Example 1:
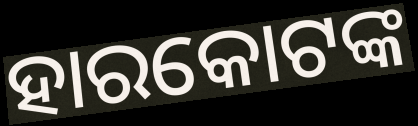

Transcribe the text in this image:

ହାରକୋଟଙ୍କ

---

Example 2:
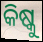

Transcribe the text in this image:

କିଷ୍କୁ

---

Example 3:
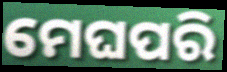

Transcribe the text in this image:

ମେଘପରି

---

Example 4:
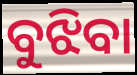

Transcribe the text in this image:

ବୁଝିବା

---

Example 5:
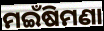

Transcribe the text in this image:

ମଇଁଷିମଣା